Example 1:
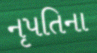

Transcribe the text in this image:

નૃપતિના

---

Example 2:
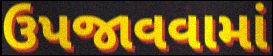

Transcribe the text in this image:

ઉપજાવવામાં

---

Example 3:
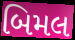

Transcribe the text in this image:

બિમલ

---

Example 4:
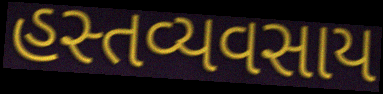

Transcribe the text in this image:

હસ્તવ્યવસાય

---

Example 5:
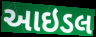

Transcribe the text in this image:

આઇડલ